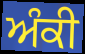
ਅੰਕੀ